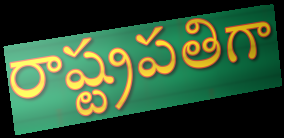
రాష్ట్రపతిగా